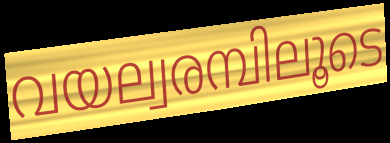
വയല്വരമ്പിലൂടെ